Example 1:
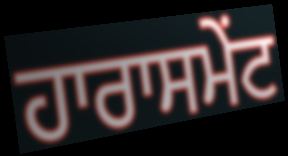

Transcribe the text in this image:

ਹਾਰਾਸਮੇਂਟ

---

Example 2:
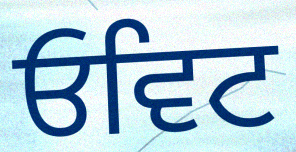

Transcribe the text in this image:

ਓਵਿਟ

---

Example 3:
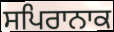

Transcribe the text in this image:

ਸਪਿਰਾਨਾਕ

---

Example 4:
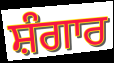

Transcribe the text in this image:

ਸ਼ੰਗਾਰ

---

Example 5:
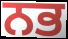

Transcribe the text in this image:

ਨਭ